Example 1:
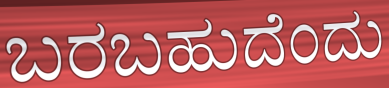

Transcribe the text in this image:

ಬರಬಹುದೆಂದು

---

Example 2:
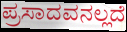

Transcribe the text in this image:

ಪ್ರಸಾದವನಲ್ಲದೆ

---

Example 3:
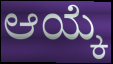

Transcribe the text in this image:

ಆಯ್ಕೆ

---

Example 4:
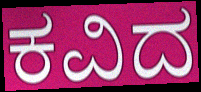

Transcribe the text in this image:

ಕವಿದ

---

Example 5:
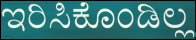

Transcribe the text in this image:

ಇರಿಸಿಕೊಂಡಿಲ್ಲ